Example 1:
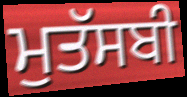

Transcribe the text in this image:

ਮੁਤੱਸਬੀ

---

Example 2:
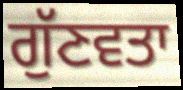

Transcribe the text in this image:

ਗੁੱਣਵਤਾ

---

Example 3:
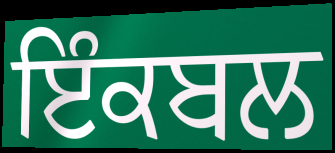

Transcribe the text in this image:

ਇੰਕਬਲ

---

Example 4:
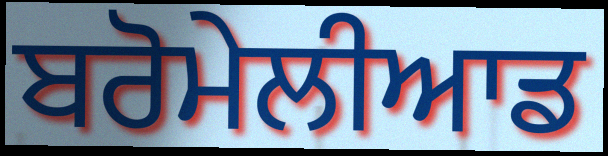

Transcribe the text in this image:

ਬਰੋਮੇਲੀਆਡ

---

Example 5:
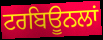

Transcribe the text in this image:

ਟਰਬਿਊਨਲਾਂ